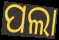
ପଲା